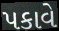
પકાવે